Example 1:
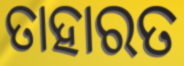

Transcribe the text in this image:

ତାହାରତ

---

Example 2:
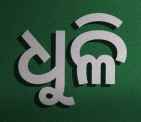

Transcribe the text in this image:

ଧୁଳି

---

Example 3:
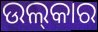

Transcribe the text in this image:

ଉଲ୍‍କାର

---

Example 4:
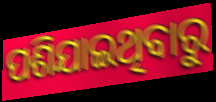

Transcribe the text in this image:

ପଶିଯାଇଥିବାରୁ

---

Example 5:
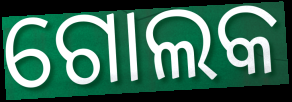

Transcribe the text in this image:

ଗୋଲକ